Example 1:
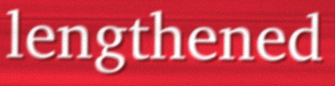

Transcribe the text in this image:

lengthened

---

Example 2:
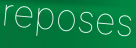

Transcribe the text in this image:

reposes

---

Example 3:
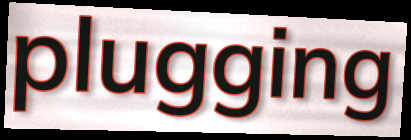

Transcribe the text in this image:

plugging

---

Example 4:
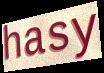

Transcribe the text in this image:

hasy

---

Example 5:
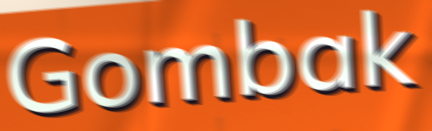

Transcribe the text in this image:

Gombak